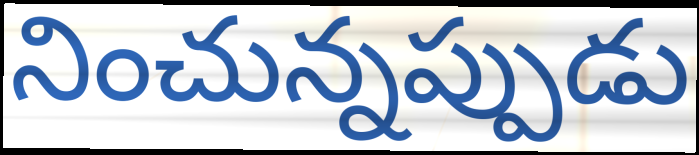
నించున్నప్పుడు